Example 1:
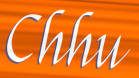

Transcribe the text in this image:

Chhu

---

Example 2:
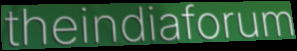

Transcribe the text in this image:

theindiaforum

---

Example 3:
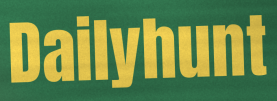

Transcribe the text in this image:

Dailyhunt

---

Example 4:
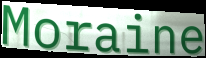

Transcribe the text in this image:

Moraine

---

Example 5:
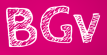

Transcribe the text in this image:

BGv